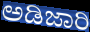
ಅಡಿಜಾರಿ